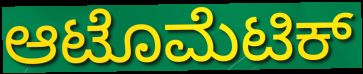
ಆಟೊಮೆಟಿಕ್